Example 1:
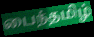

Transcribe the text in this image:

பைந்தமிழ்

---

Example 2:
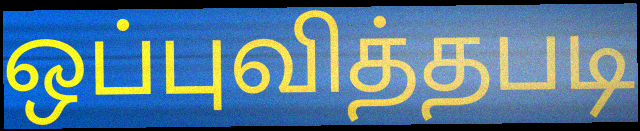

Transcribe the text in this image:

ஒப்புவித்தபடி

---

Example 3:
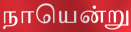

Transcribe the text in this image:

நாயென்று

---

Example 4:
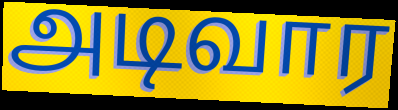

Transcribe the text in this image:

அடிவார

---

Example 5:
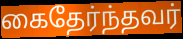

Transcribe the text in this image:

கைதேர்ந்தவர்